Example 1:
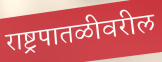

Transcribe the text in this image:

राष्ट्रपातळीवरील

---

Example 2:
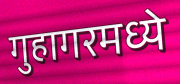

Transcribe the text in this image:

गुहागरमध्ये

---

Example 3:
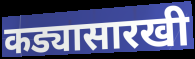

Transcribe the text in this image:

कड्यासारखी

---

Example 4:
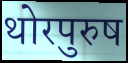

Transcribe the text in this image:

थोरपुरुष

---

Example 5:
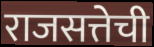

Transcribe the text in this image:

राजसत्तेची